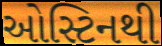
ઓસ્ટિનથી